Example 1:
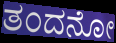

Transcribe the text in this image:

ತಂದನೋ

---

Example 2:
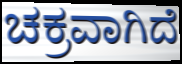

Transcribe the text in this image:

ಚಕ್ರವಾಗಿದೆ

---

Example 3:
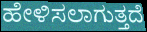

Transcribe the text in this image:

ಹೇಳಿಸಲಾಗುತ್ತದೆ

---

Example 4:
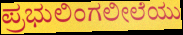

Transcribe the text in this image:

ಪ್ರಭುಲಿಂಗಲೀಲೆಯು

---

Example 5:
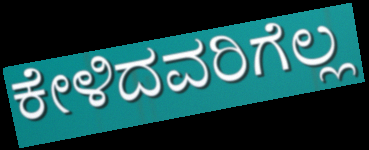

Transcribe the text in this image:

ಕೇಳಿದವರಿಗೆಲ್ಲ